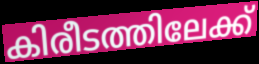
കിരീടത്തിലേക്ക്